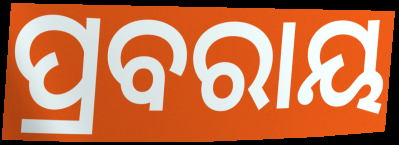
ପ୍ରବରାୟ